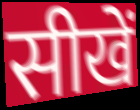
सीखें